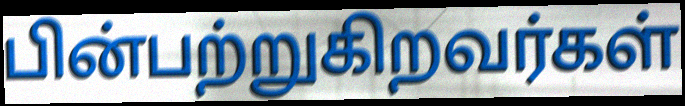
பின்பற்றுகிறவர்கள்